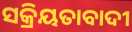
ସକ୍ରିୟତାବାଦୀ